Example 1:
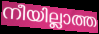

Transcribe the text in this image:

നീയില്ലാത്ത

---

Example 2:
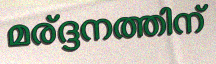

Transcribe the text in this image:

മര്ദ്ദനത്തിന്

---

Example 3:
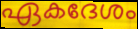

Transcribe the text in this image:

ഏകദേശം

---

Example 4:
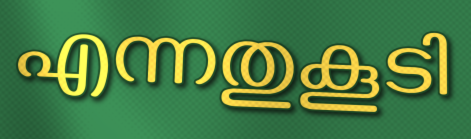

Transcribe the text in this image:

എന്നതുകൂടി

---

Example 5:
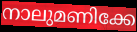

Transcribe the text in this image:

നാലുമണിക്കേ